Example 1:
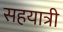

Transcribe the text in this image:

सहयात्री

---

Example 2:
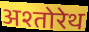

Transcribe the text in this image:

अश्तोरेथ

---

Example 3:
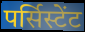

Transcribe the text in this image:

पर्सिस्टेंट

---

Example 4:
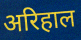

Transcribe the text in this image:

अरिहाल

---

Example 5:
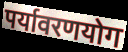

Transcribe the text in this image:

पर्यावरणयोग